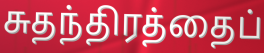
சுதந்திரத்தைப்